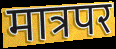
मात्रपर